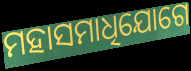
ମହାସମାଧିଯୋଗେ